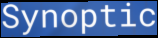
Synoptic